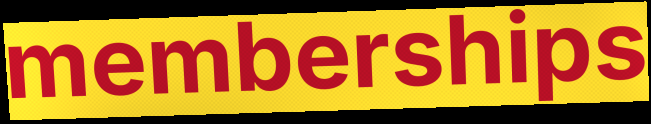
memberships